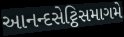
આનન્દસેટ્ઠિસમાગમે